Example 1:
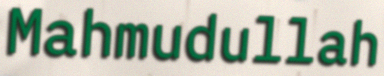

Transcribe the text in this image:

Mahmudullah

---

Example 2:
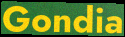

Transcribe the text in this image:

Gondia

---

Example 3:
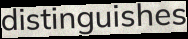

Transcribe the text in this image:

distinguishes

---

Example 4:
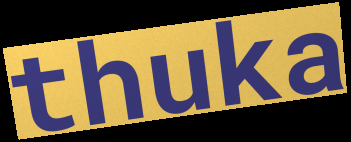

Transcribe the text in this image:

thuka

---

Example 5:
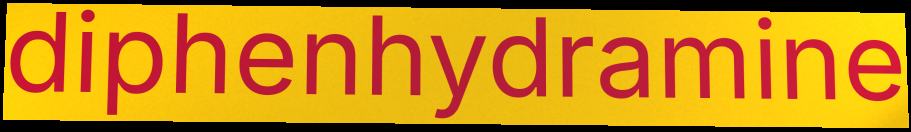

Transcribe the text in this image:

diphenhydramine